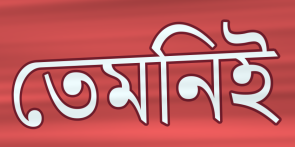
তেমনিই